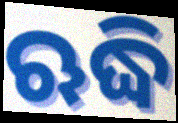
ଋଦ୍ଧି